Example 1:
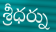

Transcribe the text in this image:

శ్రీధర్ను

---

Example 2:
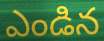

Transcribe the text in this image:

ఎండిన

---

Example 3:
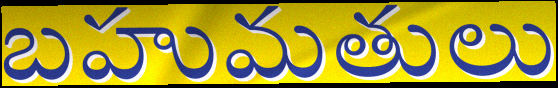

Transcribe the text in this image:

బహుమతులు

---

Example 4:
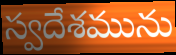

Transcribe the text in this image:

స్వదేశమును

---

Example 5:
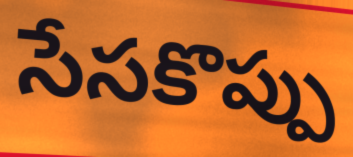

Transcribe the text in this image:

సేసకొప్పు